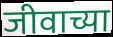
जीवाच्या